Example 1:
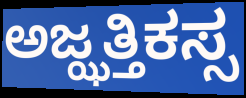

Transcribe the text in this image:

ಅಜ್ಝತ್ತಿಕಸ್ಸ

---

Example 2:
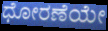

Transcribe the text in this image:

ಧೋರಣೆಯೇ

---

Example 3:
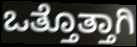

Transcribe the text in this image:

ಒತ್ತೊತ್ತಾಗಿ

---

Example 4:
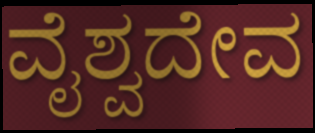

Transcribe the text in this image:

ವೈಶ್ವದೇವ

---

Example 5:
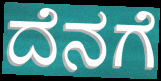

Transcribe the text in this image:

ದೆನಗೆ